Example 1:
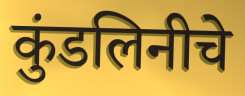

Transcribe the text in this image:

कुंडलिनीचे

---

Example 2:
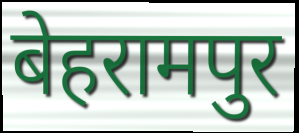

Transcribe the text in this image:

बेहरामपुर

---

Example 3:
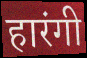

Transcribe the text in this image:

हारंगी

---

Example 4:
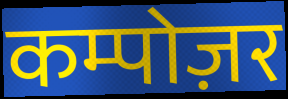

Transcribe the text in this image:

कम्पोज़र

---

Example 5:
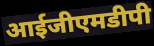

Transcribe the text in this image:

आईजीएमडीपी